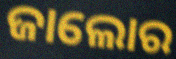
ଜାଲୋର